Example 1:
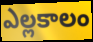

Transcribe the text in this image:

ఎల్లకాలం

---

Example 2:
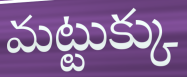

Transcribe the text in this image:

మట్టుక్కు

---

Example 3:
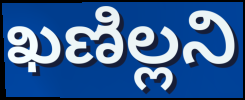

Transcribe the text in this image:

ఖణిల్లని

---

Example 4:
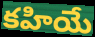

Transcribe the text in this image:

కహియే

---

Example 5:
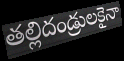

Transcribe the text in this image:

తల్లిదండ్రులకైనా